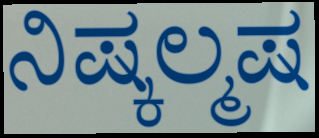
ನಿಷ್ಕಲ್ಮಷ